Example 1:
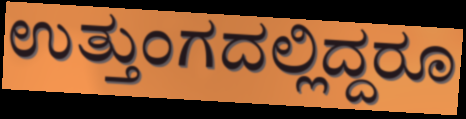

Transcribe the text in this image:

ಉತ್ತುಂಗದಲ್ಲಿದ್ದರೂ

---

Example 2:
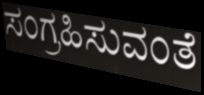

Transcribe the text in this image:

ಸಂಗ್ರಹಿಸುವಂತೆ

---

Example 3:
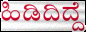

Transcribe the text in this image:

ಹಿಡಿದಿದ್ದೆ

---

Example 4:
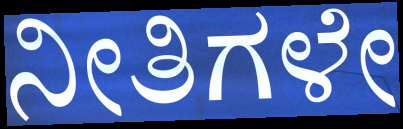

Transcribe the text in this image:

ನೀತಿಗಳೇ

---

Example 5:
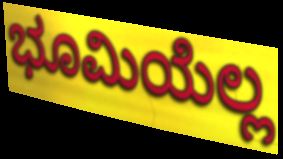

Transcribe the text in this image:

ಭೂಮಿಯೆಲ್ಲ